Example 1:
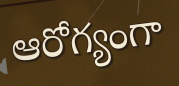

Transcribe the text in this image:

ఆరోగ్యంగా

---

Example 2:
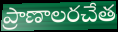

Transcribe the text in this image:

ప్రాణాలరచేత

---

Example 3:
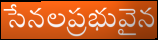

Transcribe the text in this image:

సేనలప్రభువైన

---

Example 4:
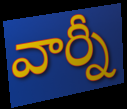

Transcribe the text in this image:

వార్నీ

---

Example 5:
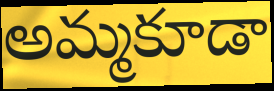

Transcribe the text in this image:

అమ్మకూడా